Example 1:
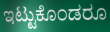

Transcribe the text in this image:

ಇಟ್ಟುಕೊಂಡರೂ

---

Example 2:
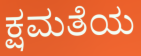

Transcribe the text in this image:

ಕ್ಷಮತೆಯ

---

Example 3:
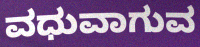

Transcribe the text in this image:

ವಧುವಾಗುವ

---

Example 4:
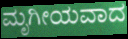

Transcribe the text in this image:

ಮೃಗೀಯವಾದ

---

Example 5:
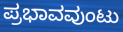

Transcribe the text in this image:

ಪ್ರಭಾವವುಂಟು